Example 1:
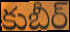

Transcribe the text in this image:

కుబీర్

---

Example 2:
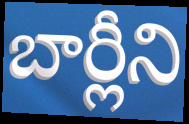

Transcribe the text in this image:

బార్లీని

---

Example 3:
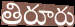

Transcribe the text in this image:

తిరూరు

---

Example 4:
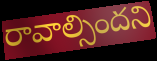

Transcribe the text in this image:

రావాల్సిందని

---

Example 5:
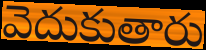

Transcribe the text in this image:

వెదుకుతారు